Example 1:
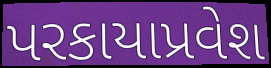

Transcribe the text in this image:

પરકાયાપ્રવેશ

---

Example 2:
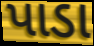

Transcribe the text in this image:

પાડા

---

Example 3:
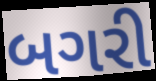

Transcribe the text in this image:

બગરી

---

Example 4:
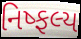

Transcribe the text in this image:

નિષ્ફલ્ય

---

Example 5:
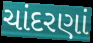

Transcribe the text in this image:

ચાંદરણાં